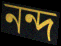
নন্দ